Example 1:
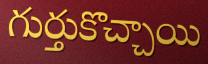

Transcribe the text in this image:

గుర్తుకొచ్చాయి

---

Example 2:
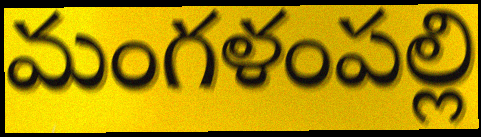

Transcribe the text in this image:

మంగళంపల్లి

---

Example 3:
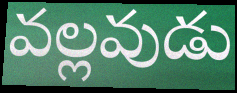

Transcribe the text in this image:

వల్లవుడు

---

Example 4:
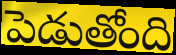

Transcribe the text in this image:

పెడుతోంది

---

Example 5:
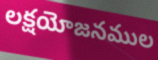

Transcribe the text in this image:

లక్షయోజనముల